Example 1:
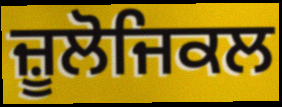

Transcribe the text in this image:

ਜ਼ੂਲੋਜਿਕਲ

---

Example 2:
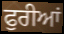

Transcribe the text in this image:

ਫੁਰੀਆਂ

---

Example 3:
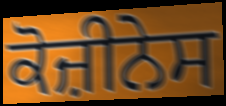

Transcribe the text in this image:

ਕੋਜ਼ੀਨੇਸ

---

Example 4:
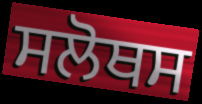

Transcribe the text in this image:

ਸਲੋਥਸ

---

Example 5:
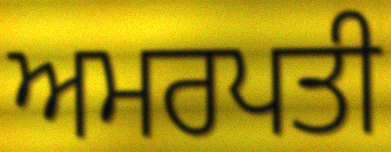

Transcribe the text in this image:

ਅਮਰਪਤੀ